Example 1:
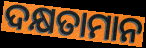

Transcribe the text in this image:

ଦକ୍ଷତାମାନ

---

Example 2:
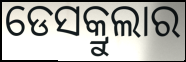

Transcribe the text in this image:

ଡେସକ୍ରୁଲାର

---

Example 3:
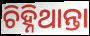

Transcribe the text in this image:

ଚିହ୍ନିଥାନ୍ତା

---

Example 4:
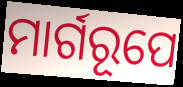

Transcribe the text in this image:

ମାର୍ଗରୂପେ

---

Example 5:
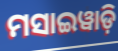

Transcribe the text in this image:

ମସାଇୱାଡ଼ି